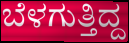
ಬೆಳಗುತ್ತಿದ್ದ